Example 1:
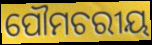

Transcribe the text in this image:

ପୌମଚରୀୟ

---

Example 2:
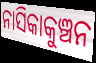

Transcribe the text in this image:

ନାସିକାକୁଞ୍ଚନ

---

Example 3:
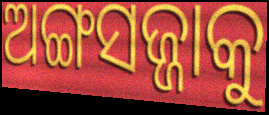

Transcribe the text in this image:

ଅଙ୍ଗସଜ୍ଜାକୁ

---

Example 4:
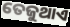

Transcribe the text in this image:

ତେଜୁଥାଏ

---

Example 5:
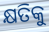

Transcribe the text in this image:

କ୍ଷତିକୁ